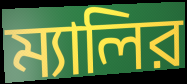
ম্যালির